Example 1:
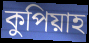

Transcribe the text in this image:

কুপিয়াহ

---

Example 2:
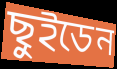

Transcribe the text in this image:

ছুইডেন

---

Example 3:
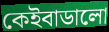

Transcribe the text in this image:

কেইবাডালো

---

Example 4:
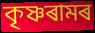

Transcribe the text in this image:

কৃষ্ণৰামৰ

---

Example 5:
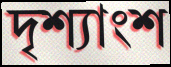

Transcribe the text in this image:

দৃশ্যাংশ